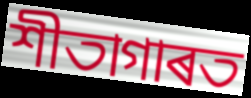
শীতাগাৰত